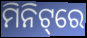
ମିନିଟ୍‌ରେ